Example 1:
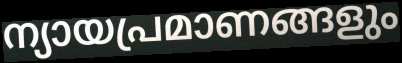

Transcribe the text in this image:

ന്യായപ്രമാണങ്ങളും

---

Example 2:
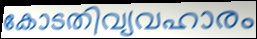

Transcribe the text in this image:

കോടതിവ്യവഹാരം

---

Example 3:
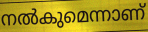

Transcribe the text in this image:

നൽകുമെന്നാണ്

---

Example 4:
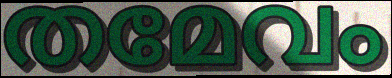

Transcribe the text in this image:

തമേവം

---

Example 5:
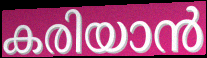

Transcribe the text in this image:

കരിയാൻ